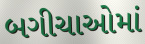
બગીચાઓમાં